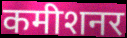
कमीशनर